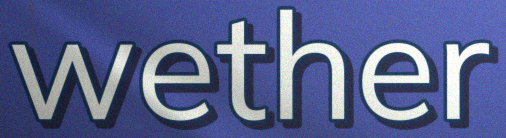
wether